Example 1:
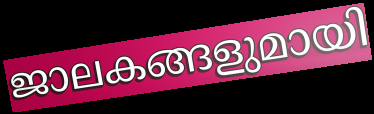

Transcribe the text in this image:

ജാലകങ്ങളുമായി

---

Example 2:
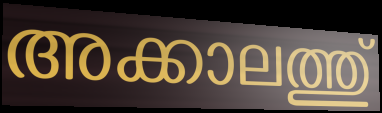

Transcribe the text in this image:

അക്കാലത്തു്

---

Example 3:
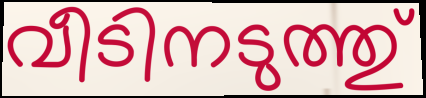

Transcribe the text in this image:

വീടിനടുത്തു്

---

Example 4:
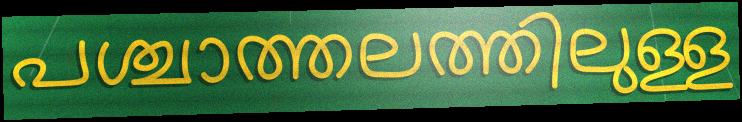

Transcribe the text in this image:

പശ്ചാത്തലത്തിലുള്ള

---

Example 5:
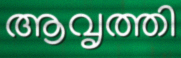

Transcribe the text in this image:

ആവൃത്തി